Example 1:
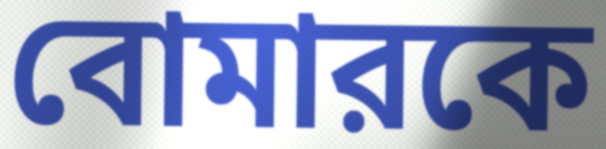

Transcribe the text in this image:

বোমারকে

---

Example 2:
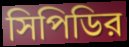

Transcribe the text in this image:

সিপিডির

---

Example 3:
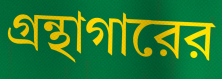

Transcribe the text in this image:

গ্রন্থাগারের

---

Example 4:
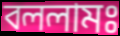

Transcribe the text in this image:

বললামঃ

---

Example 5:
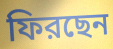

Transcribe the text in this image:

ফিরছেন